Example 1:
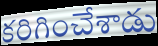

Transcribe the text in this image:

కరిగించేశాడు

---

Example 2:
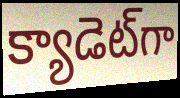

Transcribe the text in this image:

క్యాడెట్‌గా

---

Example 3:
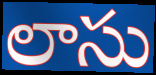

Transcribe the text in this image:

లాసు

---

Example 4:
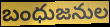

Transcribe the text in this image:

బంధుజనుల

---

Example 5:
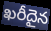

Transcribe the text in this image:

ఖరీదైన